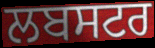
ਲਬਸਟਰ